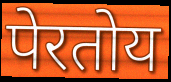
पेरतोय